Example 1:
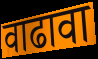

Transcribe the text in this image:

वाढावा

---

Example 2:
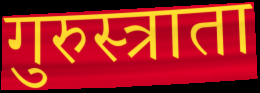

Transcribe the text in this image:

गुरुस्त्राता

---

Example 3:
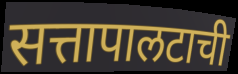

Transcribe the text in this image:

सत्तापालटाची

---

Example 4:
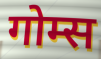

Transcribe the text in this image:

गोम्स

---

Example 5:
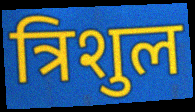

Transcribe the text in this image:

त्रिशुल